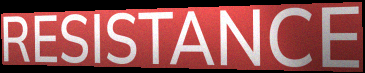
RESISTANCE